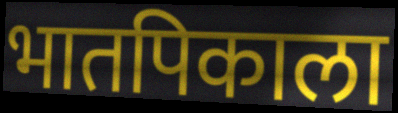
भातपिकाला